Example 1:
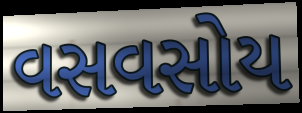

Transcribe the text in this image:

વસવસોય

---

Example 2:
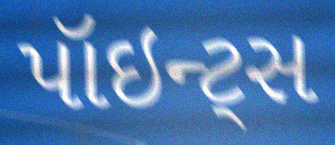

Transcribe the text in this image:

પૉઇન્ટ્સ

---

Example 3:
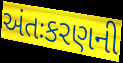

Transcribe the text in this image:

અંતઃકરણની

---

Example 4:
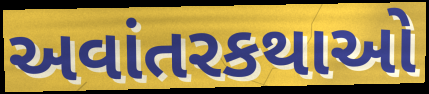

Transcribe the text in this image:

અવાંતરકથાઓ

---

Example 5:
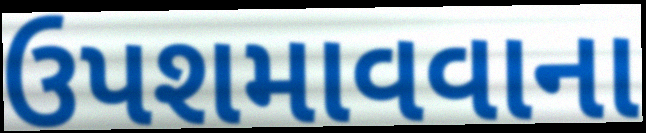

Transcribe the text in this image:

ઉપશમાવવાના